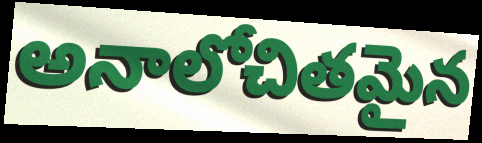
అనాలోచితమైన